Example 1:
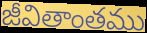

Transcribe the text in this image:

జీవితాంతము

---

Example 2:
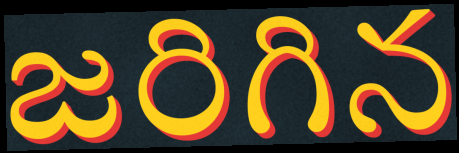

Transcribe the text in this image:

జరిగిన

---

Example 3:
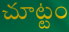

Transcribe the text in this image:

చూట్టం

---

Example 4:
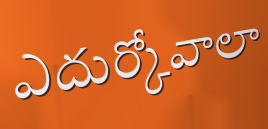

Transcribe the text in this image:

ఎదుర్కోవాలా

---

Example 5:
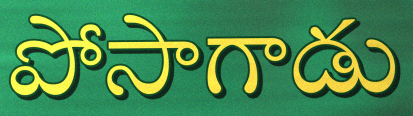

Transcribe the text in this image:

పోసాగాడు